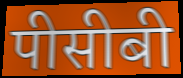
पीसीबी